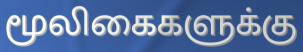
மூலிகைகளுக்கு